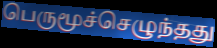
பெருமூச்செழுந்தது